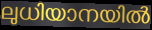
ലുധിയാനയിൽ